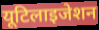
यूटिलाइजेशन